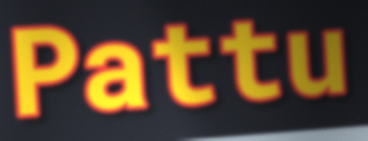
Pattu